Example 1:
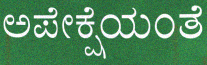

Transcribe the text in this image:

ಅಪೇಕ್ಷೆಯಂತೆ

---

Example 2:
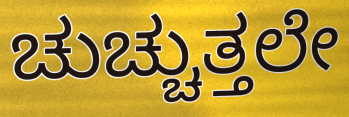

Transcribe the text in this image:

ಚುಚ್ಚುತ್ತಲೇ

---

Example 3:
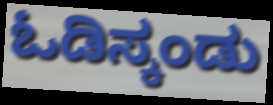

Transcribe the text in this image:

ಓಡಿಸ್ಕಂಡು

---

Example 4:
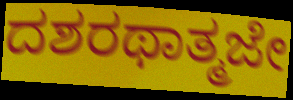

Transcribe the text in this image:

ದಶರಥಾತ್ಮಜೇ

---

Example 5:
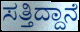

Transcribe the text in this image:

ಸತ್ತಿದ್ದಾನೆ